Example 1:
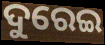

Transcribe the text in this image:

ଦୁରେଇ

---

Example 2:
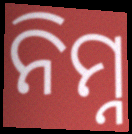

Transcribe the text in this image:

ନିମ୍ନ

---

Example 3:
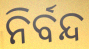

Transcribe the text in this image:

ନିର୍ବନ୍ଦ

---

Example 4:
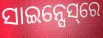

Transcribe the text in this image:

ସାଇନ୍ସେସ୍‌ରେ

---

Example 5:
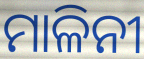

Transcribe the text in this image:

ମାଳିନୀ